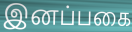
இனப்பகை